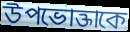
উপভোক্তাকে